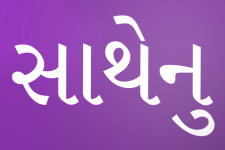
સાથેનુ